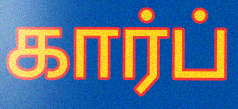
கார்ப்